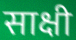
साक्षी